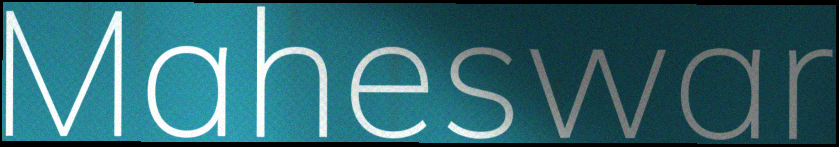
Maheswar